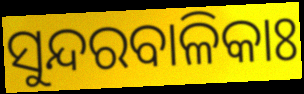
ସୁନ୍ଦରବାଳିକାଃ